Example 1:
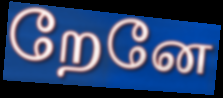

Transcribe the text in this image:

றேனே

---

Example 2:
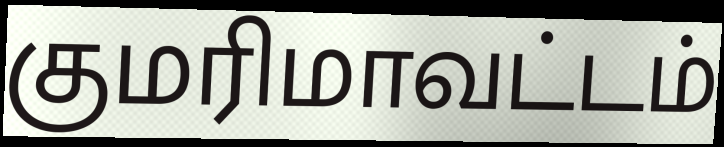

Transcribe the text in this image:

குமரிமாவட்டம்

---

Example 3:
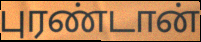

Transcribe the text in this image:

புரண்டான்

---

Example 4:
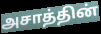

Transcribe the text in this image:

அசாத்தின்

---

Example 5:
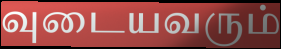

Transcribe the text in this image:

வுடையவரும்